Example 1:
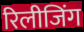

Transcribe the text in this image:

रिलीजिंग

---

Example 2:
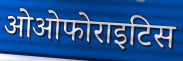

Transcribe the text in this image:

ओओफोराइटिस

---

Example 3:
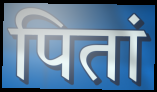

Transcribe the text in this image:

पितां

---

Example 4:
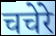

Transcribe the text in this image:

चचेरे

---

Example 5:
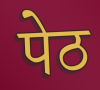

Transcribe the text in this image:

पेठ